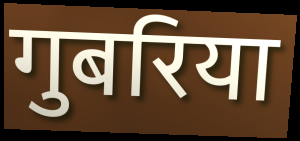
गुबरिया